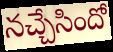
నచ్చేసిందో